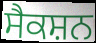
ਸੈਕਸ਼ਨ